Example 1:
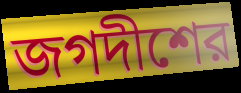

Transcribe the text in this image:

জগদীশের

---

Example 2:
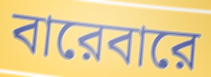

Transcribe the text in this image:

বারেবারে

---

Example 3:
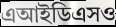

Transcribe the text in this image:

এআইডিএসও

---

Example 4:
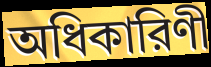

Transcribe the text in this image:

অধিকারিণী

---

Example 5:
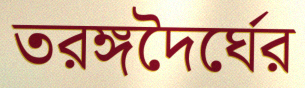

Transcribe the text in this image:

তরঙ্গদৈর্ঘের